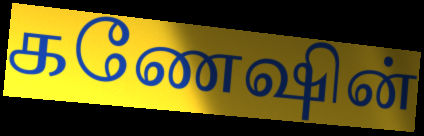
கணேஷின்